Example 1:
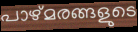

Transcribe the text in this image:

പാഴ്മരങ്ങളുടെ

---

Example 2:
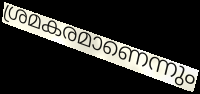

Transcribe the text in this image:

ശ്രമകരമാണെന്നും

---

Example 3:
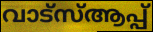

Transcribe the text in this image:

വാട്സ്ആപ്പ്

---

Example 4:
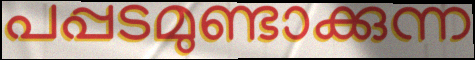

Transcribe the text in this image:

പപ്പടമുണ്ടാക്കുന്ന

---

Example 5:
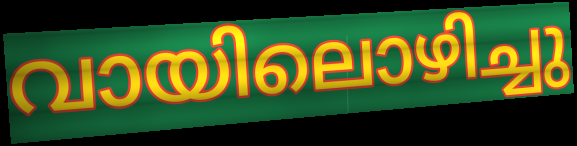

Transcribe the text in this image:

വായിലൊഴിച്ചു